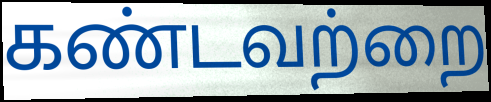
கண்டவற்றை